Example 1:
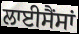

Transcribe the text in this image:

ਲਾਈਸੈਂਸਾਂ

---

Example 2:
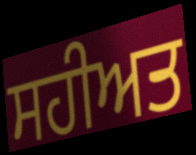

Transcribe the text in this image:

ਸਹੀਅਤ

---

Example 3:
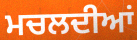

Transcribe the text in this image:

ਮਚਲਦੀਆਂ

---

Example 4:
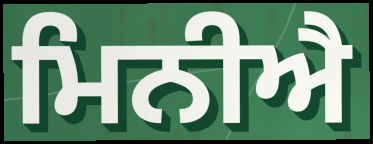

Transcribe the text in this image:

ਮਿਨੀਐ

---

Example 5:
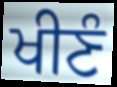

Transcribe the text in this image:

ਖੀਣੰ